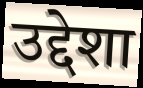
उद्देशा